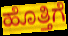
ಹೊತ್ತಿಗೆ